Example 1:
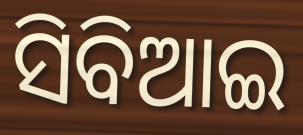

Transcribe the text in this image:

ସିବିଆଇ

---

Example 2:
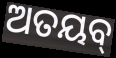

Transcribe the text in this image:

ଅତୟବ୍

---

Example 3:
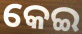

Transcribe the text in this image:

କେଇ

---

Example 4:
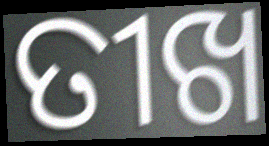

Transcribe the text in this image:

ତୀଖ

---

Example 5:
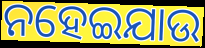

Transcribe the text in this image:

ନହେଇଯାଉ